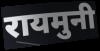
रायमुनी